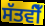
ਸੱਤਵੀਁ